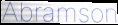
Abramson